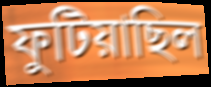
ফুটিয়াছিল